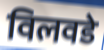
विलवडे